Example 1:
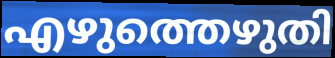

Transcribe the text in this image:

എഴുത്തെഴുതി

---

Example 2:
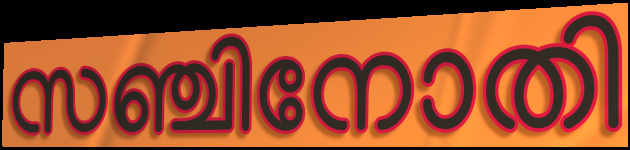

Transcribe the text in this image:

സഞ്ചിനോതി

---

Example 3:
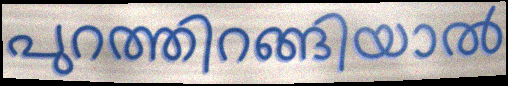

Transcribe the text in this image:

പുറത്തിറങ്ങിയാൽ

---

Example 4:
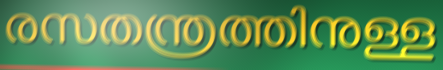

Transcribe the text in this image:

രസതന്ത്രത്തിനുള്ള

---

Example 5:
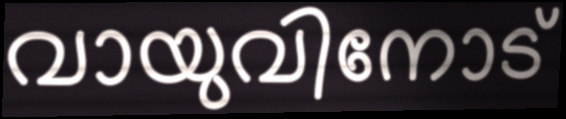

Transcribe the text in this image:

വായുവിനോട്